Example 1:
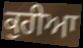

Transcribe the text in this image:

ਕੁਹੀਆ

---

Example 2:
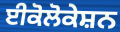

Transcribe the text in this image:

ਈਕੋਲੋਕੇਸ਼ਨ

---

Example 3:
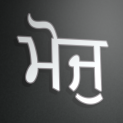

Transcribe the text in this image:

ਮੋਜੁ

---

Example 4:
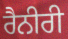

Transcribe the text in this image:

ਰੈਨੀਰੀ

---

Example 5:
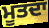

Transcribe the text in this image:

ਮੂਤਦਾ